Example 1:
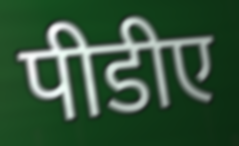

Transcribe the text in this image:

पीडीए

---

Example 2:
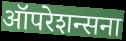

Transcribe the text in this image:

ऑपरेशन्सना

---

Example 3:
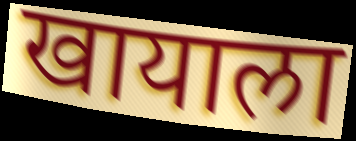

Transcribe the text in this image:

खायाला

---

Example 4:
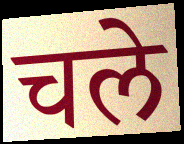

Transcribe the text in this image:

चले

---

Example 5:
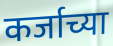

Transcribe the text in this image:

कर्जाच्या